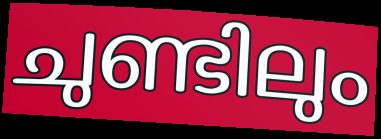
ചുണ്ടിലും